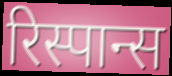
रिस्पान्स